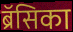
ब्रॅसिका